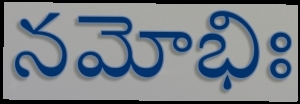
నమోభిః